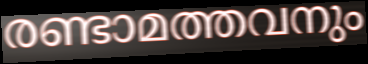
രണ്ടാമത്തവനും